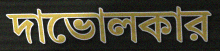
দাভোলকার